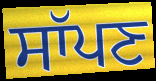
ਸਾੱਪਣ